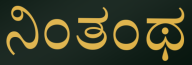
ನಿಂತಂಥ